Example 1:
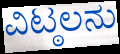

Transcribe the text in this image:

ವಿಟ್ಠಲನು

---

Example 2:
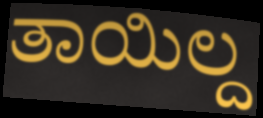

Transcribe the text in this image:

ತಾಯಿಲ್ದ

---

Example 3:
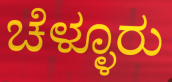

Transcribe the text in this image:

ಚೆಳ್ಳೂರು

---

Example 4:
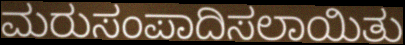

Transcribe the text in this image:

ಮರುಸಂಪಾದಿಸಲಾಯಿತು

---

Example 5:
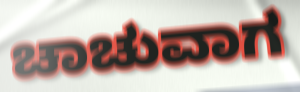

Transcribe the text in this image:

ಚಾಚುವಾಗ